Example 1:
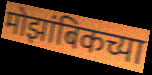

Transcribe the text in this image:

मोझांबिकच्या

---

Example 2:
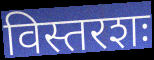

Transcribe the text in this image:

विस्तरशः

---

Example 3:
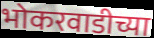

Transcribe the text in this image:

भोकरवाडीच्या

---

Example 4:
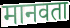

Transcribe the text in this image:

मानवता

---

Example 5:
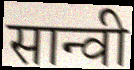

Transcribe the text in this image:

सान्वी